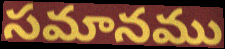
సమానము